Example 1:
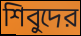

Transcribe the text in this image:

শিবুদের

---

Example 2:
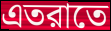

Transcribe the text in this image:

এতরাতে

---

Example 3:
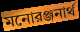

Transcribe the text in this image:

মনোরঞ্জনার্থ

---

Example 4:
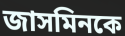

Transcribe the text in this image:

জাসমিনকে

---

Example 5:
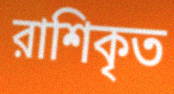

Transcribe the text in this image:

রাশিকৃত